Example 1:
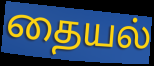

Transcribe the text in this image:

தையல்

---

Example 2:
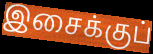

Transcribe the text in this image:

இசைக்குப்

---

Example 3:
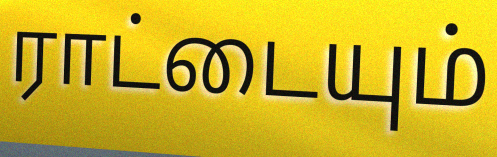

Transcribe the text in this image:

ராட்டையும்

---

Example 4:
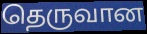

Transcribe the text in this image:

தெருவான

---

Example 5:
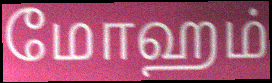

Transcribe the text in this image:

மோஹம்